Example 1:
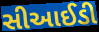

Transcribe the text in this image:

સીઆઈડી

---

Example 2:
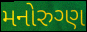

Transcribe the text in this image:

મનોરુગ્ણ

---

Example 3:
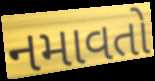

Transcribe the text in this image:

નમાવતો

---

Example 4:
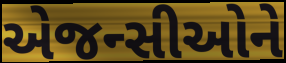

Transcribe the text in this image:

એજન્સીઓને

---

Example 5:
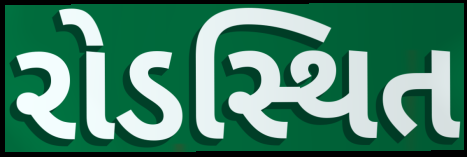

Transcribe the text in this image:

રોડસ્થિત